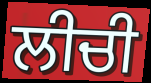
ਲੀਚੀ